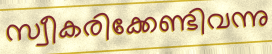
സ്വീകരിക്കേണ്ടിവന്നു